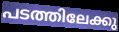
പടത്തിലേക്കു